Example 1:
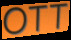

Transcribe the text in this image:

OTT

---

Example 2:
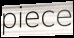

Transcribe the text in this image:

piece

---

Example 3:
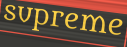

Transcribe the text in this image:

supreme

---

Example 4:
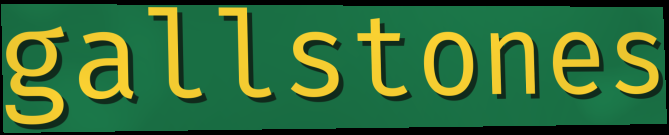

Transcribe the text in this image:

gallstones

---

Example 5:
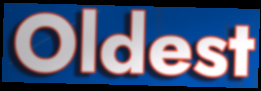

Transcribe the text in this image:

Oldest